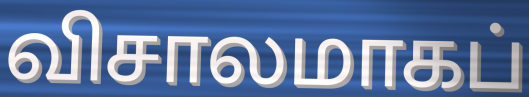
விசாலமாகப்